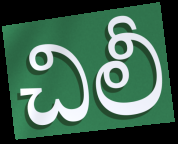
చిలీ